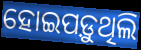
ହୋଇପଡ଼ୁଥିଲି